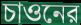
চাওনের